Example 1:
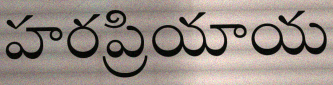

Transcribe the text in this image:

హరప్రియాయ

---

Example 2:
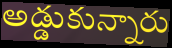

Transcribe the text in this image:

అడ్డుకున్నారు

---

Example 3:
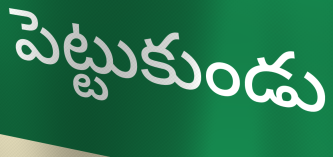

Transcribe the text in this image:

పెట్టుకుండు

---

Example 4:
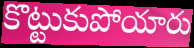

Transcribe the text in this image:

కొట్టుకుపోయారు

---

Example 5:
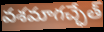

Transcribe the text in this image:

వశమాగచ్ఛేత్